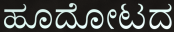
ಹೂದೋಟದ